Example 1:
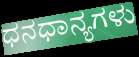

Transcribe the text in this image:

ಧನಧಾನ್ಯಗಳು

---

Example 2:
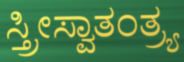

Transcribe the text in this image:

ಸ್ತ್ರೀಸ್ವಾತಂತ್ರ್ಯ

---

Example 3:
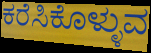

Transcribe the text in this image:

ಕರೆಸಿಕೊಳ್ಳುವ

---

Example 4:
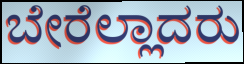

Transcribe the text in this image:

ಬೇರೆಲ್ಲಾದರು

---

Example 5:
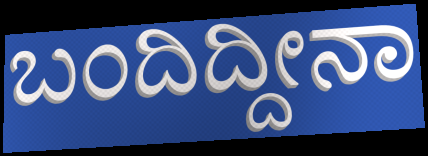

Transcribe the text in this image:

ಬಂದಿದ್ದೀನಾ